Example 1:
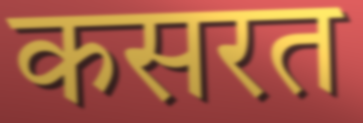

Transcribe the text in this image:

कसरत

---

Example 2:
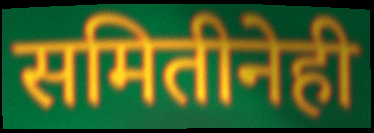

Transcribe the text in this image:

समितीनेही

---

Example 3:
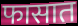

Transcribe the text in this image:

फासात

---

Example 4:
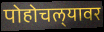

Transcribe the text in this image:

पोहोचल्यावर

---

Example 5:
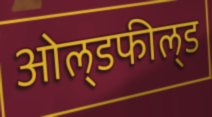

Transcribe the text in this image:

ओल्डफील्ड